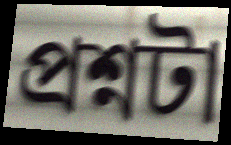
প্রশ্নটা